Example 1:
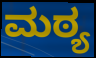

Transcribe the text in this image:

ಮಠ್ಯ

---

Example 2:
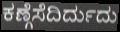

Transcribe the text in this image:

ಕಣ್ಗೆಸೆದಿರ್ದುದು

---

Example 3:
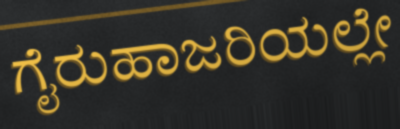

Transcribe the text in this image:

ಗೈರುಹಾಜರಿಯಲ್ಲೇ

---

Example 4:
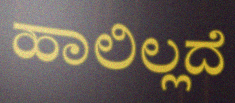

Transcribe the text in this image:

ಹಾಲಿಲ್ಲದೆ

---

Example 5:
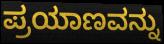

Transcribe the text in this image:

ಪ್ರಯಾಣವನ್ನು